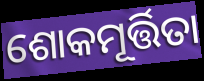
ଶୋକମୂର୍ତ୍ତିତା